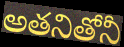
అతనితోనీ